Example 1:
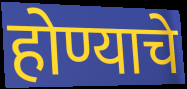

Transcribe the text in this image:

होण्याचे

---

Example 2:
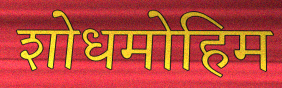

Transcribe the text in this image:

शोधमोहिम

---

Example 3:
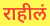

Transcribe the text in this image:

राहीलं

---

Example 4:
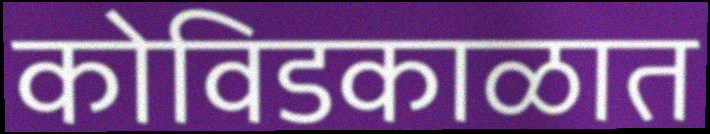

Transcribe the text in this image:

कोविडकाळात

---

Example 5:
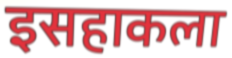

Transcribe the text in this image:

इसहाकला